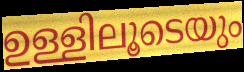
ഉള്ളിലൂടെയും